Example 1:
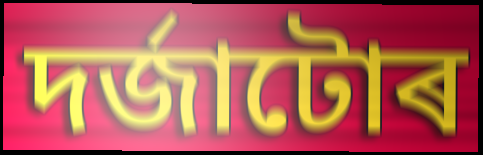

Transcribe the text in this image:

দৰ্জাটোৰ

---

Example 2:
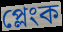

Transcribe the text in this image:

প্লেংক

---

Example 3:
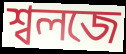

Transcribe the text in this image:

শ্বলজে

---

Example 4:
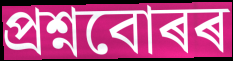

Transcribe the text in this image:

প্ৰশ্নবোৰৰ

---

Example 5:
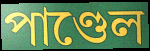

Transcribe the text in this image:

পাণ্ডেল